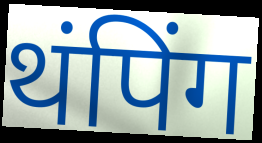
थंपिंग